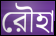
রৌহা